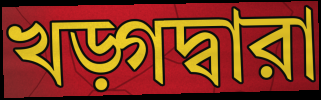
খড়্গদ্বারা